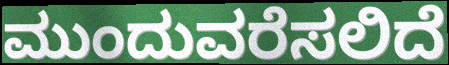
ಮುಂದುವರೆಸಲಿದೆ